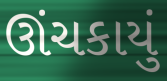
ઊંચકાયું